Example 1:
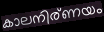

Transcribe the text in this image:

കാലനിര്ണയം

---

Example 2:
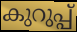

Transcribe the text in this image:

കുറുപ്പ്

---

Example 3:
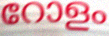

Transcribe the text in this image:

റോളം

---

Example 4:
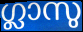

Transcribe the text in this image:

ഗ്ലാസു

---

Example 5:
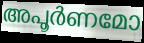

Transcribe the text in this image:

അപൂർണമോ